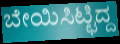
ಬೇಯಿಸಿಟ್ಟಿದ್ದ